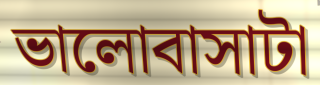
ভালোবাসাটা